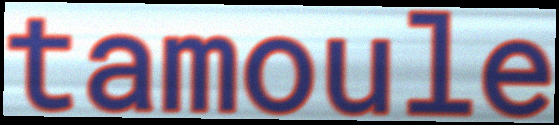
tamoule